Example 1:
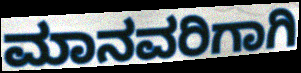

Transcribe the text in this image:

ಮಾನವರಿಗಾಗಿ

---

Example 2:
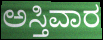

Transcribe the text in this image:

ಅಸ್ತಿವಾರ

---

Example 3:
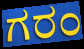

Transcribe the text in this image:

ಗರಂ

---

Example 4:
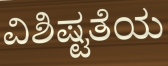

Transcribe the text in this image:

ವಿಶಿಷ್ಟತೆಯ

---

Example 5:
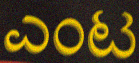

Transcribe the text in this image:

ಎಂಟ